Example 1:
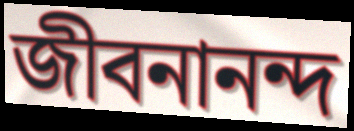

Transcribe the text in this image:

জীবনানন্দ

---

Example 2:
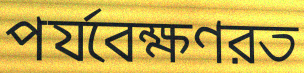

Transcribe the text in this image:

পর্যবেক্ষণরত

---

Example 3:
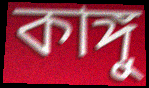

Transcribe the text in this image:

কাঙ্গু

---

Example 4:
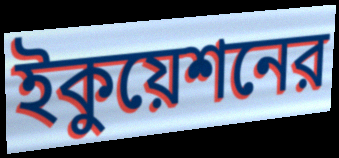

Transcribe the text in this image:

ইকুয়েশনের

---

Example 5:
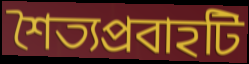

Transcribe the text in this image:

শৈত্যপ্রবাহটি